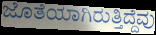
ಜೊತೆಯಾಗಿರುತ್ತಿದ್ದೆವು